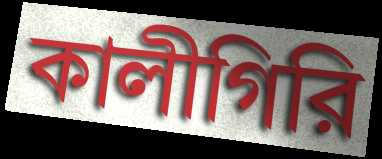
কালীগিরি